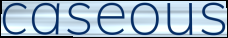
caseous